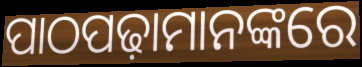
ପାଠପଢ଼ାମାନଙ୍କରେ